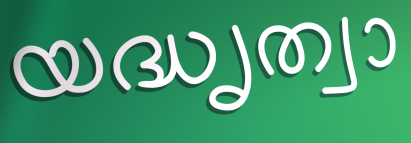
യദ്ധൃത്വാ